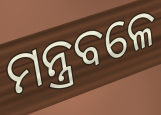
ମନ୍ତ୍ରବଳେ